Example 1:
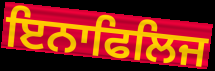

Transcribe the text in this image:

ਇਨਾਫਿਲਿਜ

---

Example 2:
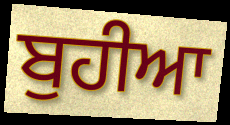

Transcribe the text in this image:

ਬੁਹੀਆ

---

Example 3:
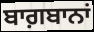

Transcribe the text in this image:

ਬਾਗ਼ਬਾਨਾਂ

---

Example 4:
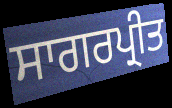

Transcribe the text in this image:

ਸਾਗਰਪ੍ਰੀਤ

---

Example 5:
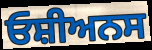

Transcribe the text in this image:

ਓਸ਼ੀਅਨਸ